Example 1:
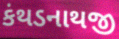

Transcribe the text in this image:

કંથડનાથજી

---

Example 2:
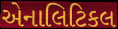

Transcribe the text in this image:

એનાલિટિકલ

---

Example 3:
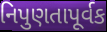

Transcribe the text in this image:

નિપુણતાપૂર્વક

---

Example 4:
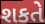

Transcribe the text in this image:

શકતે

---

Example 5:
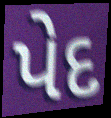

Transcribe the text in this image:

પેદ